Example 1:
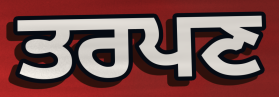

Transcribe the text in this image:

ਤਰਪਣ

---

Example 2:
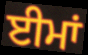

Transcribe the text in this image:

ਈਮਾਂ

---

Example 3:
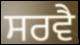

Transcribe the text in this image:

ਸਰਵੈ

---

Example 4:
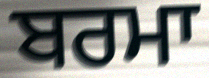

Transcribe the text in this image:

ਬਰਮਾ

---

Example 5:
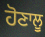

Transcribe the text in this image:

ਹੋਣਾਲੂ